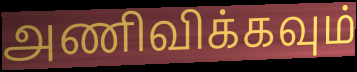
அணிவிக்கவும்